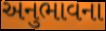
અનુભાવના